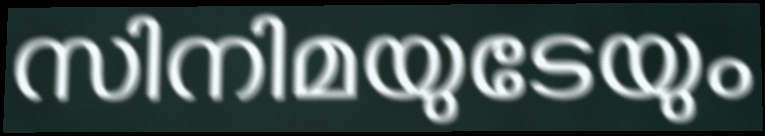
സിനിമയുടേയും